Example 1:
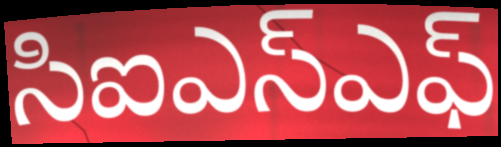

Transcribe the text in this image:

సిఐఎస్ఎఫ్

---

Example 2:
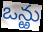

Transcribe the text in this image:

ఒన్ఱు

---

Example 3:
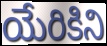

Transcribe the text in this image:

యేరికిని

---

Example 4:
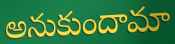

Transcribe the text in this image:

అనుకుందామా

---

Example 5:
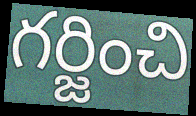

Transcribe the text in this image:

గర్జించి